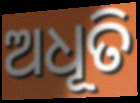
ଅଧୂତି